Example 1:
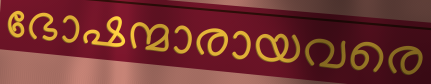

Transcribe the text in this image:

ഭോഷന്മാരായവരെ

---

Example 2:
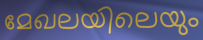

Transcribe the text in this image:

മേഖലയിലെയും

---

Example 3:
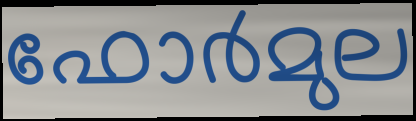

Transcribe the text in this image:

ഫോർമുല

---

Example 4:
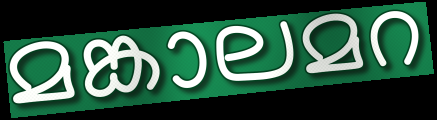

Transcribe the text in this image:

മങ്കാലമറ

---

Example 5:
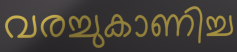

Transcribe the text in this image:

വരച്ചുകാണിച്ച